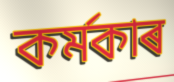
কৰ্মকাৰ